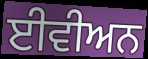
ਈਵੀਅਨ